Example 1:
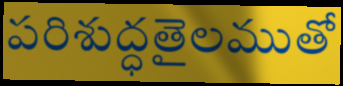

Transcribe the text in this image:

పరిశుద్ధతైలముతో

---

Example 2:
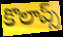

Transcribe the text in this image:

కొలాప్స్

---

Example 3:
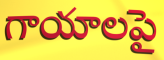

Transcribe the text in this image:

గాయాలపై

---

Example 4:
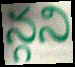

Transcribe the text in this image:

న్గని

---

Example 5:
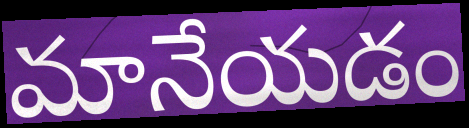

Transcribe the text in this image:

మానేయడం